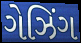
ગેઝિંગ